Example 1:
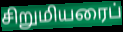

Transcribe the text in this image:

சிறுமியரைப்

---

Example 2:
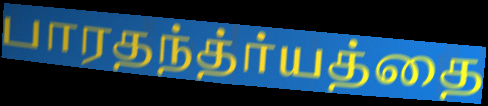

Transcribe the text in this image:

பாரதந்த்ர்யத்தை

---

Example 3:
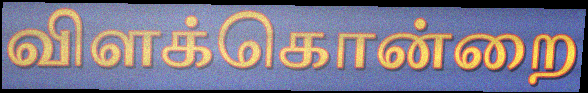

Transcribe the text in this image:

விளக்கொன்றை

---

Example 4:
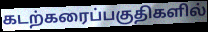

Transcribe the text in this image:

கடற்கரைப்பகுதிகளில்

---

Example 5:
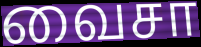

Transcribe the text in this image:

வைசா